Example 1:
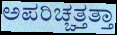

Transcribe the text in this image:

ಅಪರಿಚ್ಚತ್ತತ್ತಾ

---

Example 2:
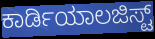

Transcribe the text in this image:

ಕಾರ್ಡಿಯಾಲಜಿಸ್ಟ್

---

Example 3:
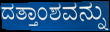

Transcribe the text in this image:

ದತ್ತಾಂಶವನ್ನು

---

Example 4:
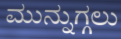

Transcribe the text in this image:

ಮುನ್ನುಗ್ಗಲು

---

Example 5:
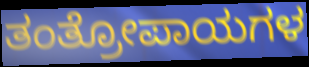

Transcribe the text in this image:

ತಂತ್ರೋಪಾಯಗಳ